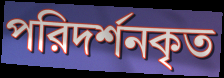
পরিদর্শনকৃত